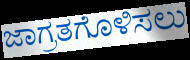
ಜಾಗ್ರತಗೊಳಿಸಲು